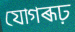
যোগৰূঢ়